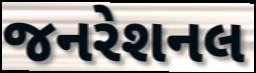
જનરેશનલ